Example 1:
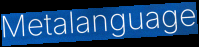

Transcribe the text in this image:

Metalanguage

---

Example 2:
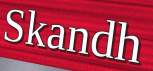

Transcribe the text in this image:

Skandh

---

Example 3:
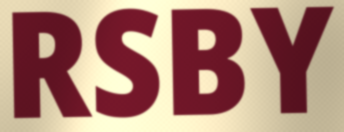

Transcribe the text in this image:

RSBY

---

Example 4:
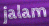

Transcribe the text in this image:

jalam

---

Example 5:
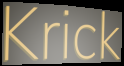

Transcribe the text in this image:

Krick